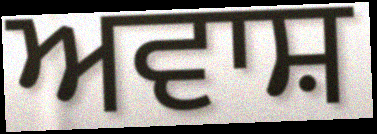
ਅਵਾਸ਼